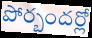
పోర్బందర్లో